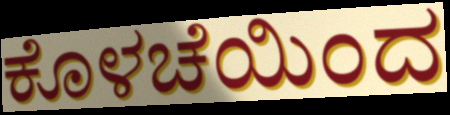
ಕೊಳಚೆಯಿಂದ